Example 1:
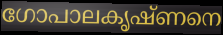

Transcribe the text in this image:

ഗോപാലകൃഷ്ണനെ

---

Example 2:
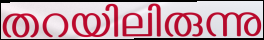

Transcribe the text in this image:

തറയിലിരുന്നു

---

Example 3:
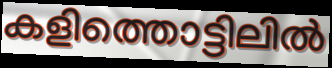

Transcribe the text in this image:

കളിത്തൊട്ടിലിൽ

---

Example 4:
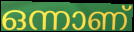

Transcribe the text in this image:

ഒന്നാണ്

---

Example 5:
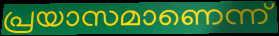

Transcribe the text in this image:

പ്രയാസമാണെന്ന്